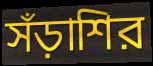
সঁড়াশির